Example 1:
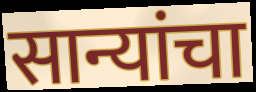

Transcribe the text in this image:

सान्यांचा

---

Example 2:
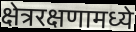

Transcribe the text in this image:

क्षेत्ररक्षणामध्ये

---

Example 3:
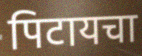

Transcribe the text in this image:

पिटायचा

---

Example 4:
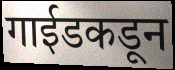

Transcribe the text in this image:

गाईडकडून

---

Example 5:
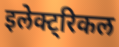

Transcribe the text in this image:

इलेक्ट्रिकल